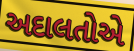
અદાલતોએ